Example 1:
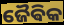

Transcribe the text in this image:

ଜୈଵିକ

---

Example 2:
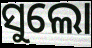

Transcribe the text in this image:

ସୁଲୋ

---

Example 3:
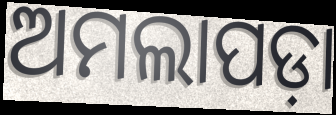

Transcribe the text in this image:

ଅମଲାପଡ଼ା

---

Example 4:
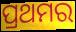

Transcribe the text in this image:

ପ୍ରଥମର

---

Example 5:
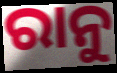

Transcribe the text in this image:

ରାନୁ